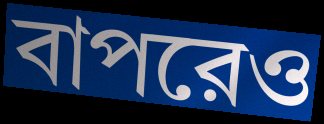
বাপরেও